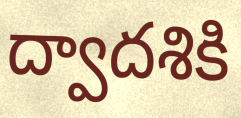
ద్వాదశికి